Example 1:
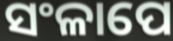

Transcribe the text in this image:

ସଂଳାପେ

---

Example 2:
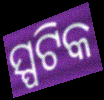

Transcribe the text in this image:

ସ୍ପଟିକ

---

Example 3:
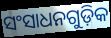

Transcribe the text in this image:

ସଂସାଧନଗୁଡ଼ିକ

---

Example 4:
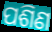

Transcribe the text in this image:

ପଶିଣ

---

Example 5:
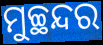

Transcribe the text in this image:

ମୁଚ୍ଛନ୍ଦର